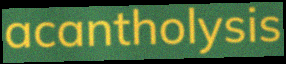
acantholysis